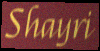
Shayri